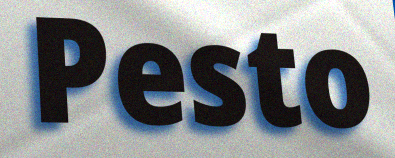
Pesto